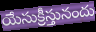
యేసుక్రీస్తునందు